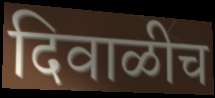
दिवाळीच